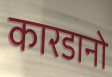
कारडानो